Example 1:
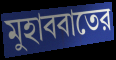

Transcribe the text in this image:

মুহাববাতের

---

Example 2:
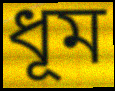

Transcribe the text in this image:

ধূম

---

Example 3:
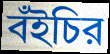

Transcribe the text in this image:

বঁইচির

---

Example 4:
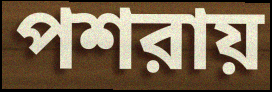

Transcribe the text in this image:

পশরায়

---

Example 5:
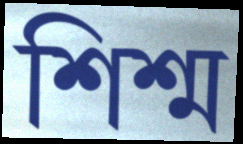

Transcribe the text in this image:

শিশ্ম